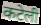
कटेली